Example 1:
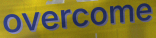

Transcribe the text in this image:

overcome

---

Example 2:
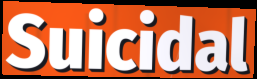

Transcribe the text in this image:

Suicidal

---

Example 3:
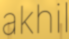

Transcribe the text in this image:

akhil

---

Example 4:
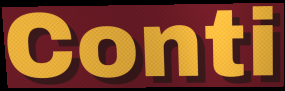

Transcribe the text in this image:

Conti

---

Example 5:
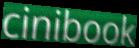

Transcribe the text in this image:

cinibook